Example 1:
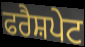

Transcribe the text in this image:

ਫਰੈਸ਼ਪੇਟ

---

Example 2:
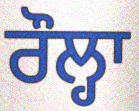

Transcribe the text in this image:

ਰੌਲ੍ਹਾ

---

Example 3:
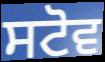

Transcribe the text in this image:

ਸਟੋਵ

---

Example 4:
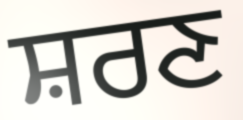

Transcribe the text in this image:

ਸ਼ਰਣ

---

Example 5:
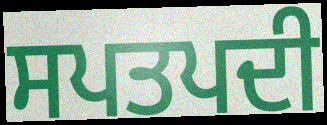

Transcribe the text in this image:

ਸਪਤਪਦੀ